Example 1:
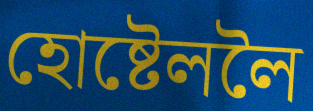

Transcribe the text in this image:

হোষ্টেললৈ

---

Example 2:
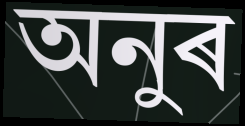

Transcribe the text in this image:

অনুৰ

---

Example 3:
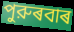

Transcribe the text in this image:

পুৰুৰবাৰ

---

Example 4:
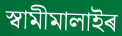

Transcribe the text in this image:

স্বামীমালাইৰ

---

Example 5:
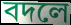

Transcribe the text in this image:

বদলে